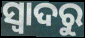
ସ୍ବାଦରୁ